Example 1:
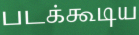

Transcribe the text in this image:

படக்கூடிய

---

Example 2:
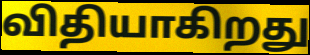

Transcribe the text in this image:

விதியாகிறது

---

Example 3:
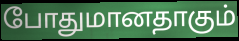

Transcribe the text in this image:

போதுமானதாகும்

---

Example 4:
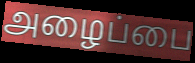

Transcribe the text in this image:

அழைப்பை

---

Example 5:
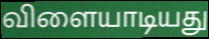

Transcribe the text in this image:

விளையாடியது